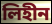
লিহীন